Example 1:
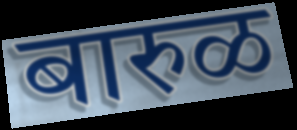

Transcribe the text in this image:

बारुळ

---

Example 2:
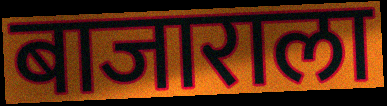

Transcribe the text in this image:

बाजाराला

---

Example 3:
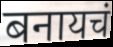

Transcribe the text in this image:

बनायचं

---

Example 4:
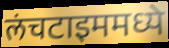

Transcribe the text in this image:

लंचटाइममध्ये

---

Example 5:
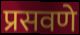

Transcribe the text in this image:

प्रसवणे